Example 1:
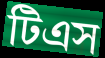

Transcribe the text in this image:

টিএস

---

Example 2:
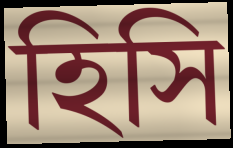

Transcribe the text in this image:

হিসি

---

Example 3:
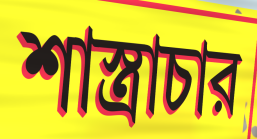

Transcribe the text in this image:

শাস্ত্রাচার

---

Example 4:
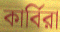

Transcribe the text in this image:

কার্বিরা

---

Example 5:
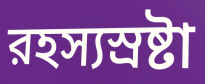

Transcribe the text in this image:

রহস্যস্রষ্টা